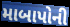
માબાપોની